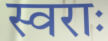
स्वराः